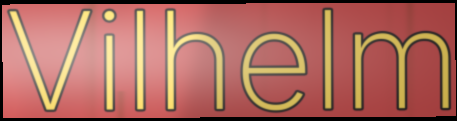
Vilhelm